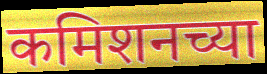
कमिशनच्या